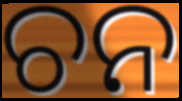
ଚନ